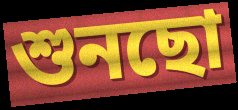
শুনছো